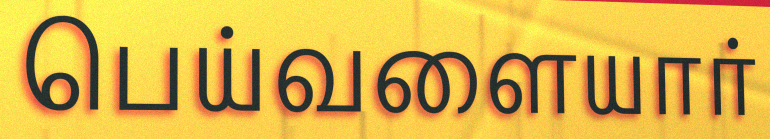
பெய்வளையார்